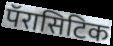
पॅरासिटिक